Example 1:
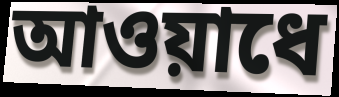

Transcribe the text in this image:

আওয়াধে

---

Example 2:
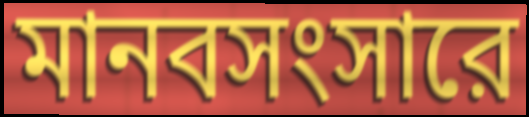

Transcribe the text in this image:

মানবসংসারে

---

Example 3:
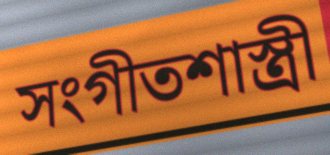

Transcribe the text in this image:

সংগীতশাস্ত্রী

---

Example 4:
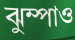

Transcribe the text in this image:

ঝুম্পাও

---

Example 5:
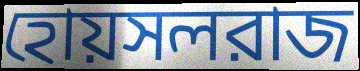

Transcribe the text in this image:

হোয়সলরাজ